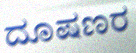
ದೂಷಣರ